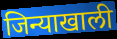
जिन्याखाली